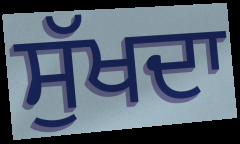
ਸੁੱਖਦਾ